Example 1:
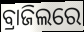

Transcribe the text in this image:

ବ୍ରାଜିଲରେ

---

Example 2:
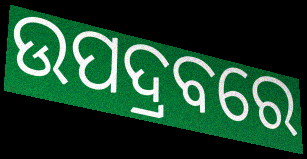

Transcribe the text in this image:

ଉପଦ୍ରବରେ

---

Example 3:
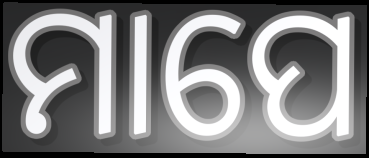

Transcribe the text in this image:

ମାପେ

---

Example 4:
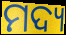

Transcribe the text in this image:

ମଦ୍ୟ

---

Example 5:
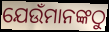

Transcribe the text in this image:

ଯେଉଁମାନଙ୍କଠୁ